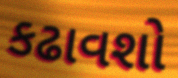
કઢાવશો